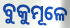
ବୁକୁମୂଳେ